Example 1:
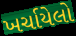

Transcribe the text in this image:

ખર્ચાયેલો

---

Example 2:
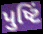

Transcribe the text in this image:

પુષ્ટિં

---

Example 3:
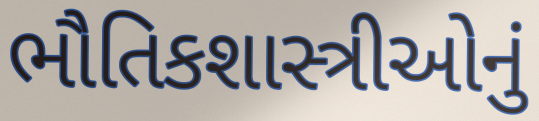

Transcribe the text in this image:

ભૌતિકશાસ્ત્રીઓનું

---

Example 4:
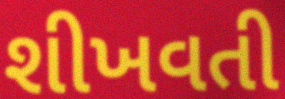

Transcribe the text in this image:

શીખવતી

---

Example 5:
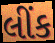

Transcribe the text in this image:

લીંક